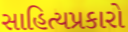
સાહિત્યપ્રકારો